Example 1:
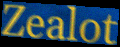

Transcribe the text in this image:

Zealot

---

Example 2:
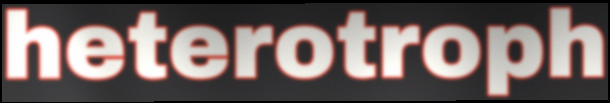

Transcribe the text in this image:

heterotroph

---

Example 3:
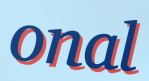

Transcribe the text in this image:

onal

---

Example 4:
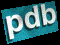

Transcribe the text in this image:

pdb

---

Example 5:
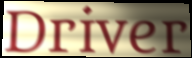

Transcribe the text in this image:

Driver